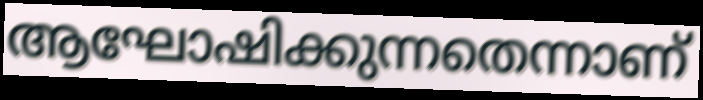
ആഘോഷിക്കുന്നതെന്നാണ്